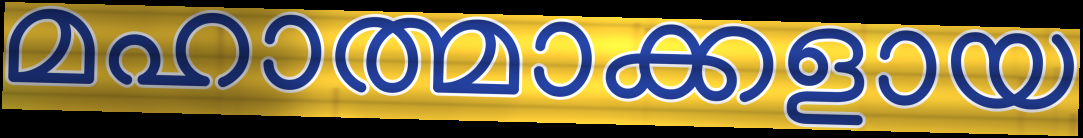
മഹാത്മാക്കളായ